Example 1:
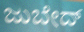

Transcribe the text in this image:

ಜುಬೇದ್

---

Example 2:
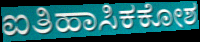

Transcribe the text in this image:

ಐತಿಹಾಸಿಕಕೋಶ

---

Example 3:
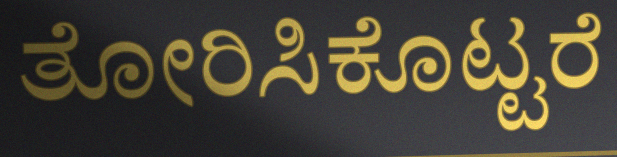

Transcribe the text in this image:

ತೋರಿಸಿಕೊಟ್ಟರೆ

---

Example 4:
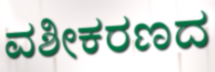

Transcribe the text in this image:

ವಶೀಕರಣದ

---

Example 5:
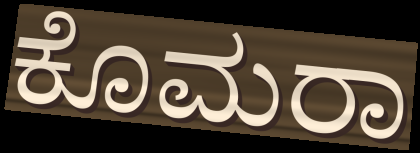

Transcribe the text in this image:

ಕೊಮರಾ